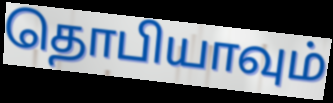
தொபியாவும்